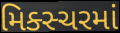
મિક્સ્ચરમાં